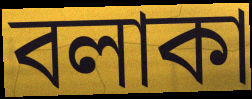
বলাকা